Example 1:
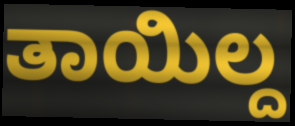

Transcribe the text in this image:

ತಾಯಿಲ್ದ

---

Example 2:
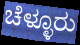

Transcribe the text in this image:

ಚೆಳ್ಳೂರು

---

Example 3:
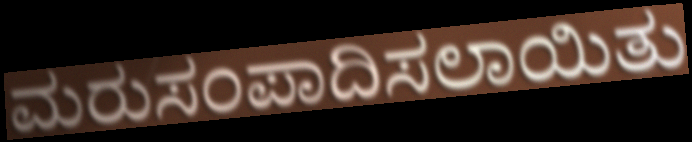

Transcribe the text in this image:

ಮರುಸಂಪಾದಿಸಲಾಯಿತು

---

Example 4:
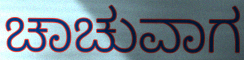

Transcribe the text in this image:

ಚಾಚುವಾಗ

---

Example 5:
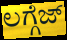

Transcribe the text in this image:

ಲಗ್ಗೆಜ್